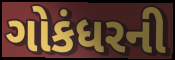
ગોકંધરની